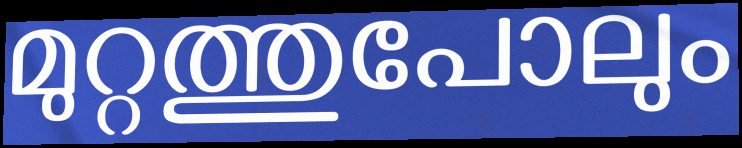
മുറ്റത്തുപോലും